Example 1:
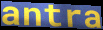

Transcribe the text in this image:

antra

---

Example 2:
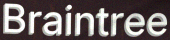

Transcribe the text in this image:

Braintree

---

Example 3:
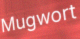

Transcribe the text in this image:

Mugwort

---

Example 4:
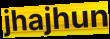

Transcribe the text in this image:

jhajhun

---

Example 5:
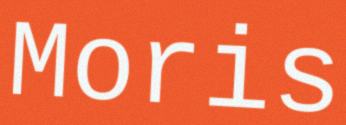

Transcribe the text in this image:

Moris